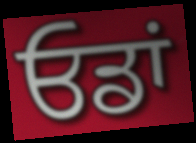
ਓਡਾਂ